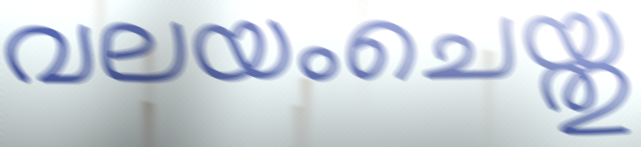
വലയംചെയ്തു